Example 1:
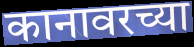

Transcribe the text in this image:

कानावरच्या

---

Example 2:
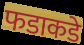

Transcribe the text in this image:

फडाकडे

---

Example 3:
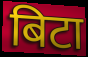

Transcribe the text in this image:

बिटा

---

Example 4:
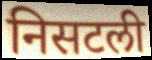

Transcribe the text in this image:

निसटली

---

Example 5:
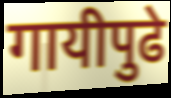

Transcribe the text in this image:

गायीपुढे